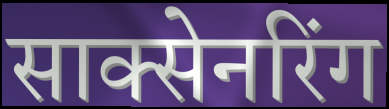
साक्सेनरिंग